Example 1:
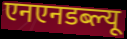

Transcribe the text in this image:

एनएनडब्ल्यू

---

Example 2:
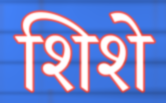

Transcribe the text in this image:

शिशे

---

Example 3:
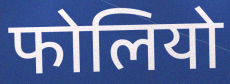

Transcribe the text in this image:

फोलियो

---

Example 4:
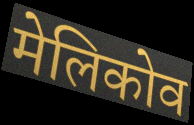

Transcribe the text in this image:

मेलिकोव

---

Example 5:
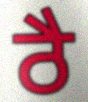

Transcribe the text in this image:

ठै